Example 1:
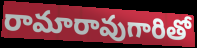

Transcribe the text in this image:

రామారావుగారితో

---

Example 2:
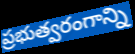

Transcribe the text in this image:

ప్రభుత్వరంగాన్ని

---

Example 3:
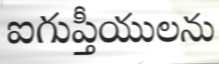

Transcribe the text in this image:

ఐగుప్తీయులను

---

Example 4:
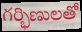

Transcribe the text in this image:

గర్భిణులతో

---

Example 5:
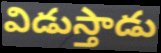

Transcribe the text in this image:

విడుస్తాడు